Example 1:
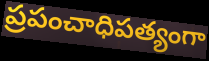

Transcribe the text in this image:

ప్రపంచాధిపత్యంగా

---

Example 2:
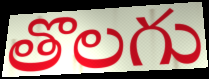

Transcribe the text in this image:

తొలగు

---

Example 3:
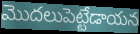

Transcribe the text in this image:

మొదలుపెట్టేడాయన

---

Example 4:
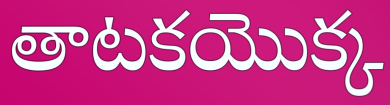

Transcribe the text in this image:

తాటకయొక్క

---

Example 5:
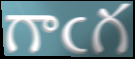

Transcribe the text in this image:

గాఁగ